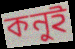
কনুই